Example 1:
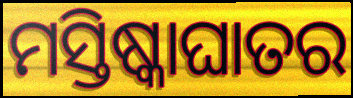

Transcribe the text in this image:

ମସ୍ତିଷ୍କାଘାତର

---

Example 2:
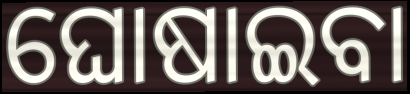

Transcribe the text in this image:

ଘୋଷାଇବା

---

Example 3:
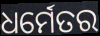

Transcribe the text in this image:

ଧର୍ମେତର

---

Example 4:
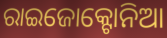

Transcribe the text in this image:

ରାଇଜୋକ୍ଟୋନିଆ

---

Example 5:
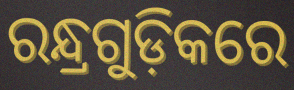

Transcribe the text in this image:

ରନ୍ଧ୍ରଗୁଡ଼ିକରେ